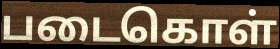
படைகொள்